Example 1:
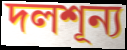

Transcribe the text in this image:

দলশূন্য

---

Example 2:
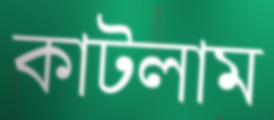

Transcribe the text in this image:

কাটলাম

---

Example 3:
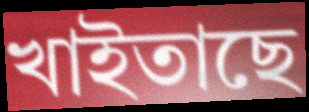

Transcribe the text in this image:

খাইতাছে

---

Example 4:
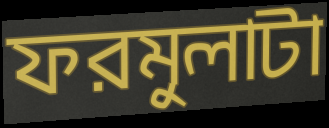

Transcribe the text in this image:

ফরমুলাটা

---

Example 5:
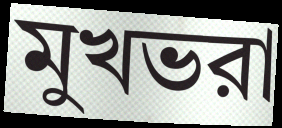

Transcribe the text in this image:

মুখভরা